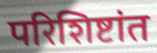
परिशिष्टांत